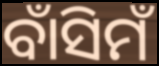
ବାଁସିମଁ